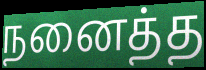
நனைத்த